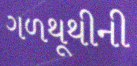
ગળથૂથીની